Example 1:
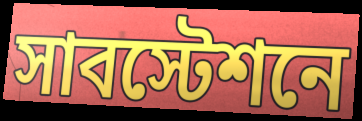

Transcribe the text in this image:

সাবস্টেশনে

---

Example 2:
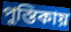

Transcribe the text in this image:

পুস্তিকায়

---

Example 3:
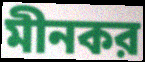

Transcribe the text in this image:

মীনকর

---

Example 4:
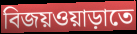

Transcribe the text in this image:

বিজয়ওয়াড়াতে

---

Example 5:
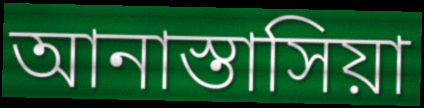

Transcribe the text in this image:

আনাস্তাসিয়া